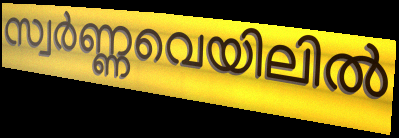
സ്വർണ്ണവെയിലിൽ